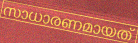
സാധാരണമായത്